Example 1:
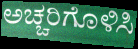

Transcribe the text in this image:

ಅಚ್ಚರಿಗೊಳಿಸಿ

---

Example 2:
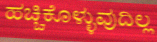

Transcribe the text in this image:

ಹಚ್ಚಿಕೊಳ್ಳುವುದಿಲ್ಲ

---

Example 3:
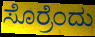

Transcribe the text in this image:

ಸೊರ್ರೆಂದು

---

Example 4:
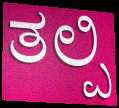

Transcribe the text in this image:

ತಲ್ಪಿ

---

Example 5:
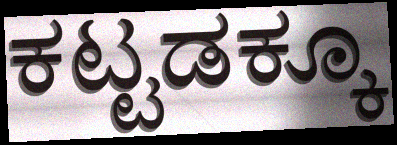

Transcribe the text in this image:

ಕಟ್ಟಡಕ್ಕೂ